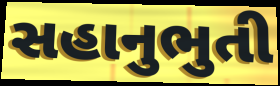
સહાનુભુતી